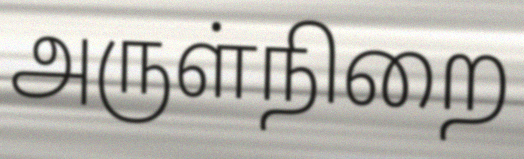
அருள்நிறை